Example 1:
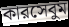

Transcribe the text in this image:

কারসেবুম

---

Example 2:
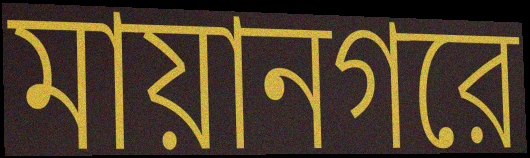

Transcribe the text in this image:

মায়ানগরে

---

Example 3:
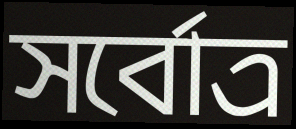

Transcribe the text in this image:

সর্বোত্র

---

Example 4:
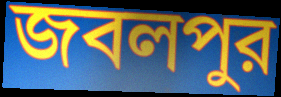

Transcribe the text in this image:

জবলপুর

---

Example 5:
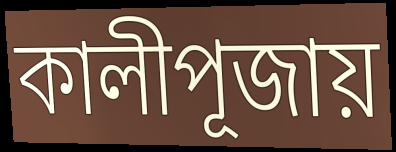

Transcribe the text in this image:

কালীপূজায়